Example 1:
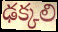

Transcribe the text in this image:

ఢక్కలి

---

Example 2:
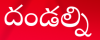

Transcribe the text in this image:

దండల్ని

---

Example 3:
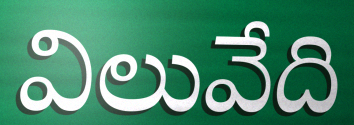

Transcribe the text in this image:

విలువేది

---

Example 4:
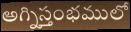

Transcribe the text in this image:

అగ్నిస్తంభములో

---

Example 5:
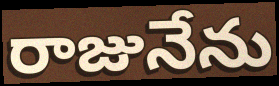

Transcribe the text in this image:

రాజునేను